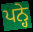
ਪਨ੍ਹੇ